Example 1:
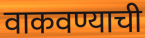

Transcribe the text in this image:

वाकवण्याची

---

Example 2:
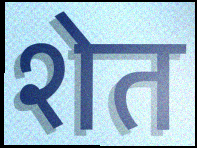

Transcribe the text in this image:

शेत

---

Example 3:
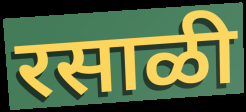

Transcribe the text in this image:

रसाळी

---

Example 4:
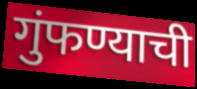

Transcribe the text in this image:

गुंफण्याची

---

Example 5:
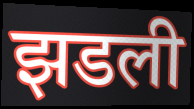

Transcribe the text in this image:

झडली